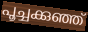
പൂച്ചക്കുഞ്ഞ്